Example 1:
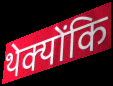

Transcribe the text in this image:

थेक्योंकि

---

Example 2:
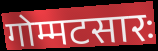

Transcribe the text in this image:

गोम्मटसारः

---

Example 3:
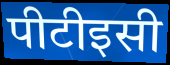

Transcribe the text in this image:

पीटीइसी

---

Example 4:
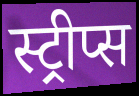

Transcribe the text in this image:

स्ट्रीप्स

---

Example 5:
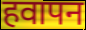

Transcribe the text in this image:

हवापन